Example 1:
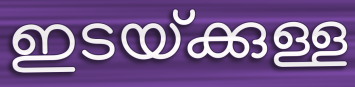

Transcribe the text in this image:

ഇടയ്‌ക്കുള്ള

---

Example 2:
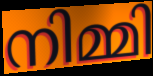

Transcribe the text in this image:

നിമ്മി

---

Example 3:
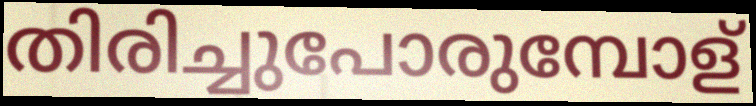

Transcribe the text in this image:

തിരിച്ചുപോരുമ്പോള്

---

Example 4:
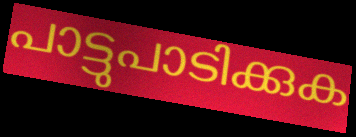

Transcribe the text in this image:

പാട്ടുപാടിക്കുക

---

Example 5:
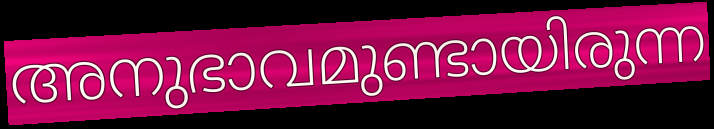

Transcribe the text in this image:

അനുഭാവമുണ്ടായിരുന്ന